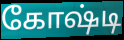
கோஷ்டி